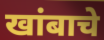
खांबाचे